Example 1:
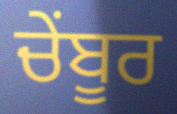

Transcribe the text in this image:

ਚੇਂਬੂਰ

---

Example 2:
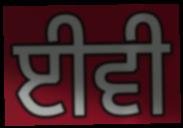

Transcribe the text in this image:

ਈਵੀ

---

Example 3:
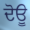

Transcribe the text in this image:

ਦੋਊ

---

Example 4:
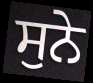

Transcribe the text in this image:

ਸੁਨੇ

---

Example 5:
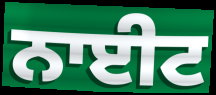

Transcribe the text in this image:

ਨਾਈਟ